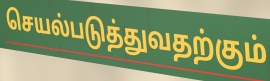
செயல்படுத்துவதற்கும்